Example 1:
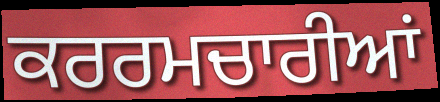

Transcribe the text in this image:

ਕਰਰਮਚਾਰੀਆਂ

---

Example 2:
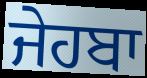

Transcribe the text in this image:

ਜੇਹਬਾ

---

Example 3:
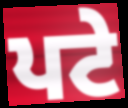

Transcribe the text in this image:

ਪਟੇ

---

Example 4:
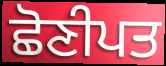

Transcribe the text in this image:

ਛੋਣੀਪਤ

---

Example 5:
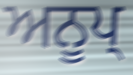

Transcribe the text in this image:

ਅਨੂਪ੍